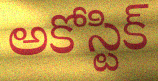
అకోస్టిక్